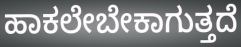
ಹಾಕಲೇಬೇಕಾಗುತ್ತದೆ